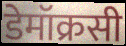
डेमॉक्रसी